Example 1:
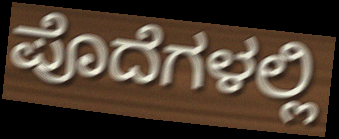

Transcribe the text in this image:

ಪೊದೆಗಳಲ್ಲಿ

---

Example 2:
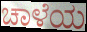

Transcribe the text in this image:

ಚಾಳೆಯ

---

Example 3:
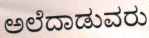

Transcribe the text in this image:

ಅಲೆದಾಡುವರು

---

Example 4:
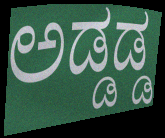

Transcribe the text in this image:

ಅಡ್ಡಡ್ಡ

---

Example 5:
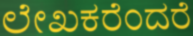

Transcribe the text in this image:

ಲೇಖಕರೆಂದರೆ